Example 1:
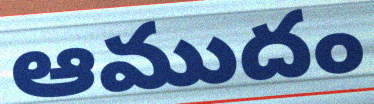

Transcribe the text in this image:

ఆముదం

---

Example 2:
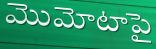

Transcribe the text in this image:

మొమోటాపై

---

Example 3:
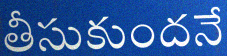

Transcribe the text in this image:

తీసుకుందనే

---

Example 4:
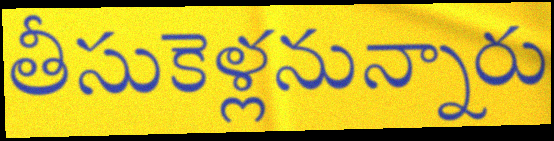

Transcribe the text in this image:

తీసుకెళ్లనున్నారు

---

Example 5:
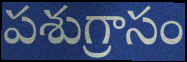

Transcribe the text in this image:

పశుగ్రాసం